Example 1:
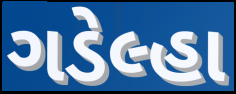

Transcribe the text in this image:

ગડેલ્હા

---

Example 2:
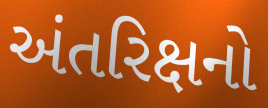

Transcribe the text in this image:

અંતરિક્ષનો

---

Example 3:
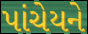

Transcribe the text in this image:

પાંચેયને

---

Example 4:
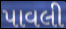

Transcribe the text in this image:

પાવલી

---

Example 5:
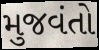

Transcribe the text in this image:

મુજવંતો